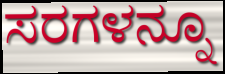
ಸರಗಳನ್ನೂ